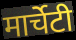
मार्चेटी